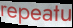
repeatu